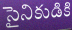
సైనికుడికి